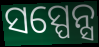
ସସ୍ପେନ୍ସ